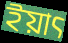
ইয়াৎ